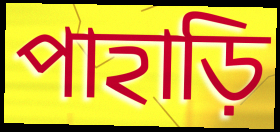
পাহাড়ি